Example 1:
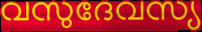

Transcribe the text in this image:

വസുദേവസ്യ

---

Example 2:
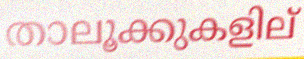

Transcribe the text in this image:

താലൂക്കുകളില്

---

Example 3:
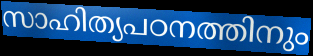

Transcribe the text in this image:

സാഹിത്യപഠനത്തിനും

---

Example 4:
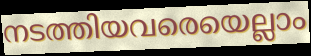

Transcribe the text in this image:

നടത്തിയവരെയെല്ലാം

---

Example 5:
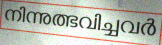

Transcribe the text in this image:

നിന്നുത്ഭവിച്ചവർ